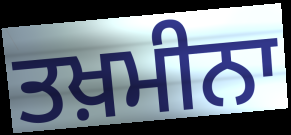
ਤਖ਼ਮੀਨਾ